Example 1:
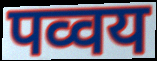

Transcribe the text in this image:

पव्वय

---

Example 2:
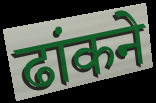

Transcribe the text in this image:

ढांकने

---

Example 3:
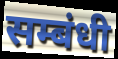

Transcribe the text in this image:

सम्बंधी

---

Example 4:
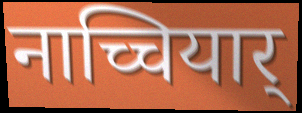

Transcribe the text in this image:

नाच्चियार्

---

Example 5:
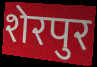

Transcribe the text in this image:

शेरपुर